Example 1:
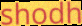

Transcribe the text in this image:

shodh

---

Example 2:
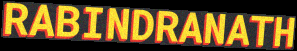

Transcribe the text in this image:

RABINDRANATH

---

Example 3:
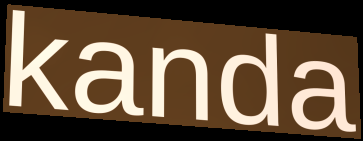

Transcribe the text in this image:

kanda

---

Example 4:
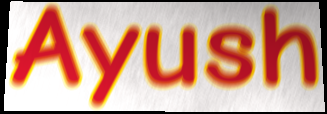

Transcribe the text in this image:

Ayush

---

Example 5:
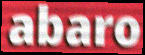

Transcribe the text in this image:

abaro